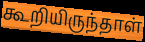
கூறியிருந்தாள்